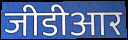
जीडीआर